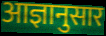
आज्ञानुसार